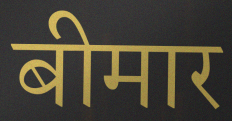
बीमार